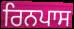
ਰਿਨਪਾਸ